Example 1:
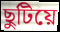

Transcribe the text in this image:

ছুটিয়ে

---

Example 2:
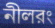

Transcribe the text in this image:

নীলরং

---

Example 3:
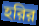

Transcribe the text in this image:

হরির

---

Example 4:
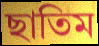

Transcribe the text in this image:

ছাতিম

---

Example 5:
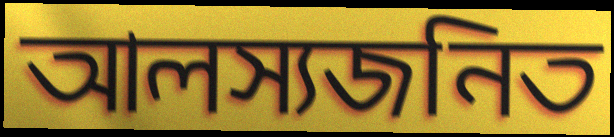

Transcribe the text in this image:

আলস্যজনিত